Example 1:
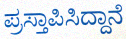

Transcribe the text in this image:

ಪ್ರಸ್ತಾಪಿಸಿದ್ದಾನೆ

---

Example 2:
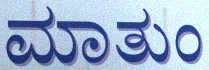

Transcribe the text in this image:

ಮಾತುಂ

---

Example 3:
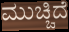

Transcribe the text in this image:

ಮುಚ್ಚಿದೆ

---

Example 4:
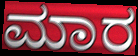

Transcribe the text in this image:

ಮಾರ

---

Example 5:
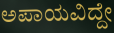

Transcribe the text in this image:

ಅಪಾಯವಿದ್ದೇ